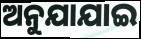
ଅନୁଯାଯାଇ